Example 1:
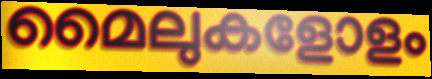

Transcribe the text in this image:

മൈലുകളോളം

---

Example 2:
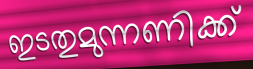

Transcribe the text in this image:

ഇടതുമുന്നണിക്ക്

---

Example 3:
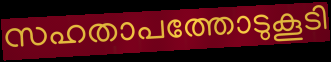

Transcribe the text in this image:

സഹതാപത്തോടുകൂടി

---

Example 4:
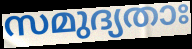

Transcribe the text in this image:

സമുദ്യതാഃ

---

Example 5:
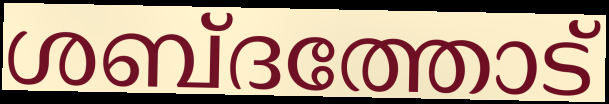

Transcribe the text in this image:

ശബ്ദത്തോട്